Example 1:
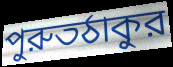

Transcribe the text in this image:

পুরুতঠাকুর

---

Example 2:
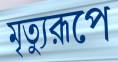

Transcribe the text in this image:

মৃত্যুরূপে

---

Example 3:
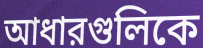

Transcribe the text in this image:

আধারগুলিকে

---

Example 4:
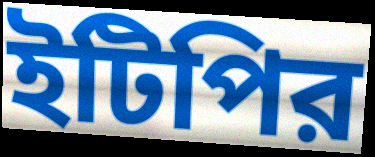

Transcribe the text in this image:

ইটিপির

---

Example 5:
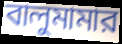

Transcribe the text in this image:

বালুমামার